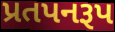
પ્રતપનરૂપ